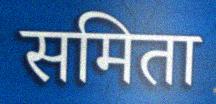
समिता